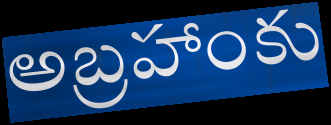
అబ్రహాంకు